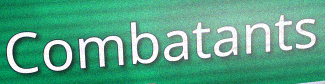
Combatants